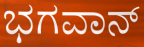
ಭಗವಾನ್